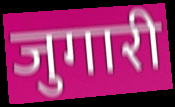
जुगारी